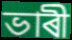
ভাৰী